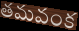
తమవంక